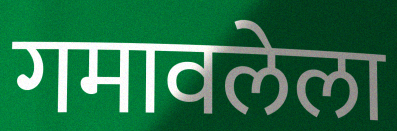
गमावलेला